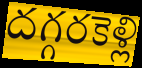
దగ్గరకెళ్లి